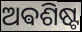
ଅଵଶିଷ୍ଟ